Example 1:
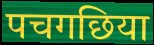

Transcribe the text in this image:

पचगछिया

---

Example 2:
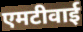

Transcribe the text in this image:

एमटीवाई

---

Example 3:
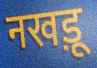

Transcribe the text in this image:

नखड़ू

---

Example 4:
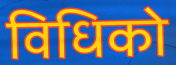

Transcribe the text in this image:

विधिको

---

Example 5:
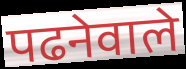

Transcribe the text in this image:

पढनेवाले